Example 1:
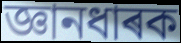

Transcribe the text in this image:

জ্ঞানধাৰক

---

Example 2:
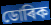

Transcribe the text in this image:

ডোৰিক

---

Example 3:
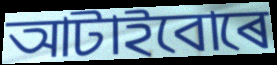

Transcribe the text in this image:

আটাইবোৰে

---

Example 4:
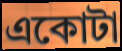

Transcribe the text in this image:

একোটা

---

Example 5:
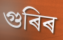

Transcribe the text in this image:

গুৰিৰ